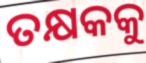
ତକ୍ଷକକୁ